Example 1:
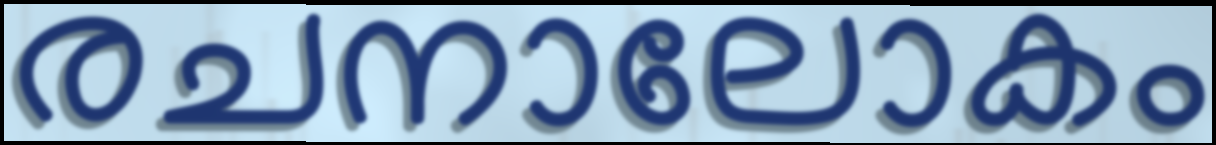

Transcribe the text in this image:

രചനാലോകം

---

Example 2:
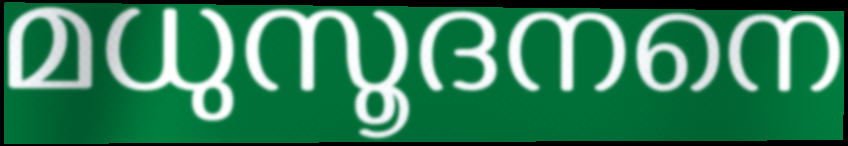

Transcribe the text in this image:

മധുസൂദനനെ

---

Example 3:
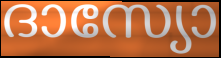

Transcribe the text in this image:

ദാസ്യോ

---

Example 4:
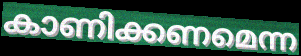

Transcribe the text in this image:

കാണിക്കണമെന്ന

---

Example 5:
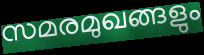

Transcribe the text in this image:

സമരമുഖങ്ങളും